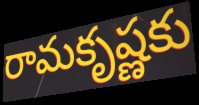
రామకృష్ణకు